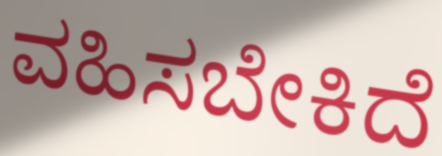
ವಹಿಸಬೇಕಿದೆ